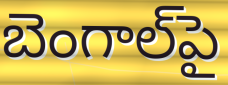
బెంగాల్‌పై